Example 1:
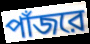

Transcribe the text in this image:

পাঁজরে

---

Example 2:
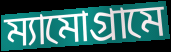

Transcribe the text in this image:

ম্যামোগ্রামে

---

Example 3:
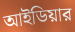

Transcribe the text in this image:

আইডিয়ার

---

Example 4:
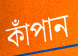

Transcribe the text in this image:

কাঁপান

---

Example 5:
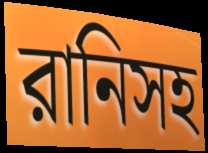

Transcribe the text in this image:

রানিসহ